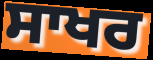
ਸਾਖਰ